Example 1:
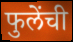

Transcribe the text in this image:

फुलेंची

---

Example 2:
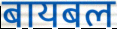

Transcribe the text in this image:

बायबल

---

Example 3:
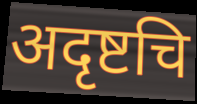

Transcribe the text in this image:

अदृष्टचि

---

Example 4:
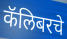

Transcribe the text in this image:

कॅलिबरचे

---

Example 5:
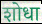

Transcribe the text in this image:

शोधा